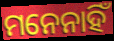
ମନେନାହିଁ